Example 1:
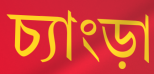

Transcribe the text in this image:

চ্যাংড়া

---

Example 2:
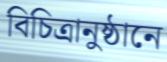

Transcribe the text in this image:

বিচিত্রানুষ্ঠানে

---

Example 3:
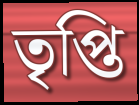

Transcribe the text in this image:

তৃপ্তি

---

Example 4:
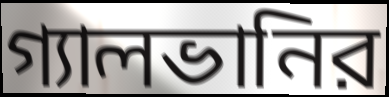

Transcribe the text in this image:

গ্যালভানির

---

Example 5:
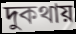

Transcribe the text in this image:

দুকথায়